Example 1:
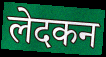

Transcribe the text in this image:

लेदकन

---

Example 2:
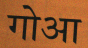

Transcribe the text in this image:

गोआ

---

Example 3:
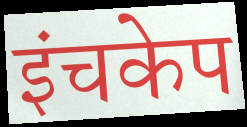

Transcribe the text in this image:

इंचकेप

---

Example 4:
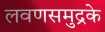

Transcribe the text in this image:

लवणसमुद्रके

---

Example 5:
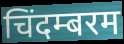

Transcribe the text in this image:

चिंदम्बरम